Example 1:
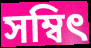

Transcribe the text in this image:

সম্বিৎ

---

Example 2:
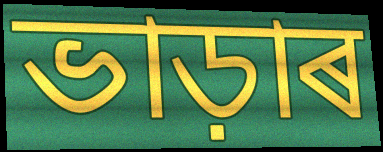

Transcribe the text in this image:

ভাড়াৰ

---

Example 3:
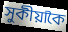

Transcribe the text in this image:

সুকীয়াকৈ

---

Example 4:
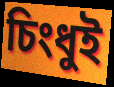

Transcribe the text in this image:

চিংধুই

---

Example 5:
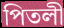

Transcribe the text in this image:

পিতলী